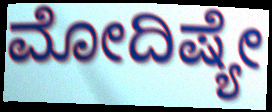
ಮೋದಿಷ್ಯೇ